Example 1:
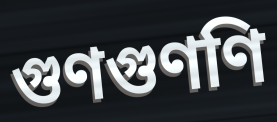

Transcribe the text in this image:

গুণগুণণি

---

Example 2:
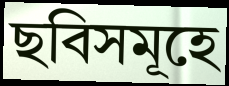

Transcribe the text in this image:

ছবিসমূহে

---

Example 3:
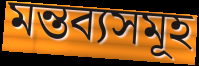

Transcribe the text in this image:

মন্তব্যসমূহ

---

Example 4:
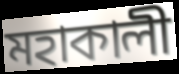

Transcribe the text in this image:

মহাকালী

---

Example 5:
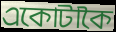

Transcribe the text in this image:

একোটাকৈ